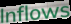
Inflows